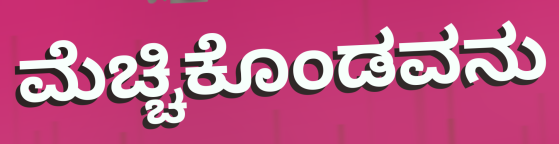
ಮೆಚ್ಚಿಕೊಂಡವನು